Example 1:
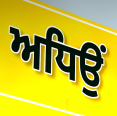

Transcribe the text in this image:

ਅਧਿਉਂ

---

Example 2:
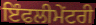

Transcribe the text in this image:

ਇੰਫਲੀਮੇਂਟਰੀ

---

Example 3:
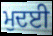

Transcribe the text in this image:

ਮੁਦਈ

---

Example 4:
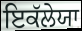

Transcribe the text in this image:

ਇਕੱਲੇਯਾ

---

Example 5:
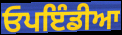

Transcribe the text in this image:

ਓਪਇੰਡੀਆ